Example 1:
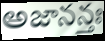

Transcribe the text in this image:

అజానన్తః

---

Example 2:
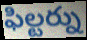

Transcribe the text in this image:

ఫిల్టర్ను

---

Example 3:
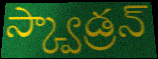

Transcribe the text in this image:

స్క్వాడ్రన్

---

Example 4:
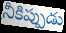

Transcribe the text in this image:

నీకిప్పుడు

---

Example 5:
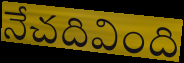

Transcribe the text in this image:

నేచదివింది